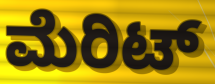
ಮೆರಿಟ್